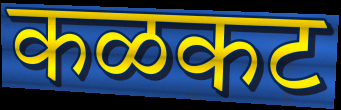
कळकट